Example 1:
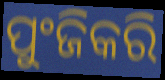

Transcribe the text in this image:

ପୁଂଜିକରି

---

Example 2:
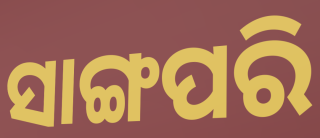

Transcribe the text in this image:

ସାଙ୍ଗପରି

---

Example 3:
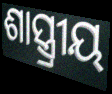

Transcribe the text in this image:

ଶାସ୍ତ୍ର୍ରୀୟ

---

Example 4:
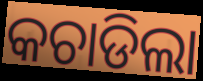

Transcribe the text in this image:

କଚାଡିଲା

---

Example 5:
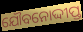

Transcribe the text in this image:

ଯୌବନୋଦ୍ଦୀପ୍ତ